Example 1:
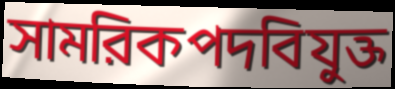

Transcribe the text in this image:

সামরিকপদবিযুক্ত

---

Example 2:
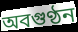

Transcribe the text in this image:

অবগুণ্ঠন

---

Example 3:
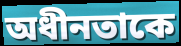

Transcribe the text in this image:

অধীনতাকে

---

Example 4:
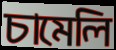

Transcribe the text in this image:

চামেলি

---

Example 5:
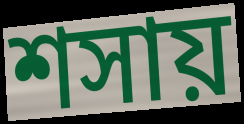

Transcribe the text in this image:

শসায়